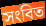
সংবিত